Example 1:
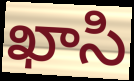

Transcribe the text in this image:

ఖాసి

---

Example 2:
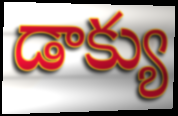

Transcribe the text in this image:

డాక్యు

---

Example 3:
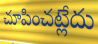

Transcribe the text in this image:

చూపించట్లేదు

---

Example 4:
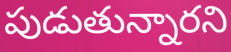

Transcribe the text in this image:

పుడుతున్నారని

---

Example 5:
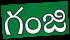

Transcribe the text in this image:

గంజి